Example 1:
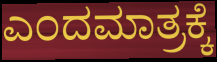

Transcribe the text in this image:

ಎಂದಮಾತ್ರಕ್ಕೆ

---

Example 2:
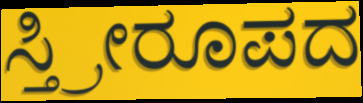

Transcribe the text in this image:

ಸ್ತ್ರೀರೂಪದ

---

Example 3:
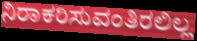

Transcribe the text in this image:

ನಿರಾಕರಿಸುವಂತಿರಲಿಲ್ಲ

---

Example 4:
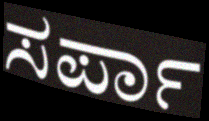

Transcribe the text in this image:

ಸರ್ಪಾ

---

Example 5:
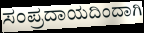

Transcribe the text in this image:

ಸಂಪ್ರದಾಯದಿಂದಾಗಿ